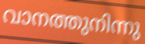
വാനത്തുനിന്നു